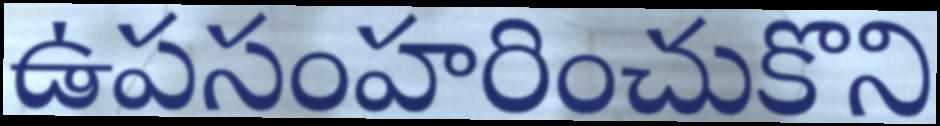
ఉపసంహరించుకొని